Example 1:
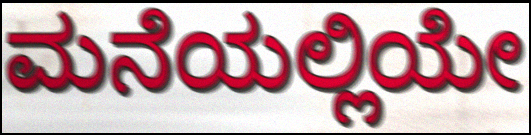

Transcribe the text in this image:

ಮನೆಯಲ್ಲಿಯೇ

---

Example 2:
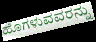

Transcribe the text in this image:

ಹೊಗಳುವವರನ್ನು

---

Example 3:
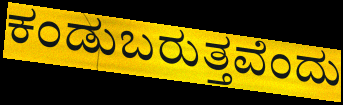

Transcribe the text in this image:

ಕಂಡುಬರುತ್ತವೆಂದು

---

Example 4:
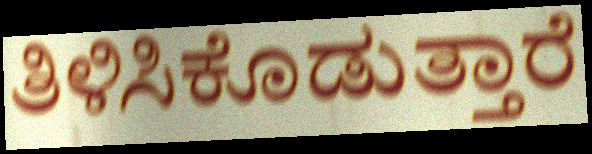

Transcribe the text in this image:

ತಿಳಿಸಿಕೊಡುತ್ತಾರೆ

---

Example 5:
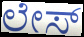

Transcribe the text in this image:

ಲೇಸ್